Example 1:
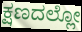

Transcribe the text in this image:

ಕ್ಷಣದಲ್ಲೋ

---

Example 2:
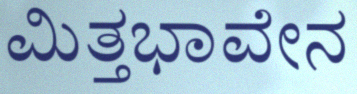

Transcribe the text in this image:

ಮಿತ್ತಭಾವೇನ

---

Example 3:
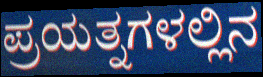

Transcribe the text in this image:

ಪ್ರಯತ್ನಗಳಲ್ಲಿನ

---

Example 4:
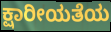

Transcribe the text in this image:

ಕ್ಷಾರೀಯತೆಯ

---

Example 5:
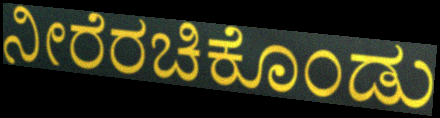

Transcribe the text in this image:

ನೀರೆರಚಿಕೊಂಡು